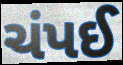
ચંપઈ